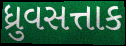
ધ્રુવસત્તાક